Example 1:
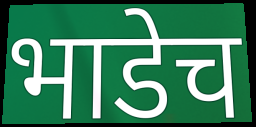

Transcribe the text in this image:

भाडेच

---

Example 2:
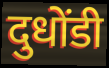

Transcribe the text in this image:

दुधोंडी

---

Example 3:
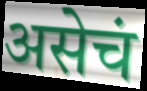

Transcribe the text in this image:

असेचं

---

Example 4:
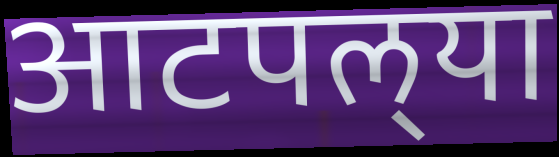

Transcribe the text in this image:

आटपल्या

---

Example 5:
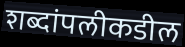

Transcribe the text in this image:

शब्दांपलीकडील